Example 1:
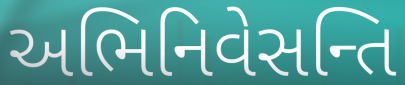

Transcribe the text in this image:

અભિનિવેસન્તિ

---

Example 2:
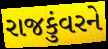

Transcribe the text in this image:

રાજકુંવરને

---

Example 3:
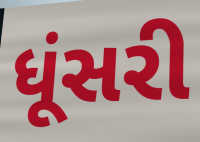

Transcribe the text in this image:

ધૂંસરી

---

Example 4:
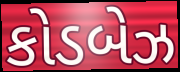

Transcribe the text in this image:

કોડબેઝ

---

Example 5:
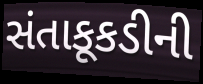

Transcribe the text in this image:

સંતાકૂકડીની